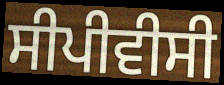
ਸੀਪੀਵੀਸੀ